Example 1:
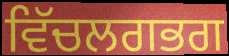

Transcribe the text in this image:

ਵਿੱਚਲਗਭਗ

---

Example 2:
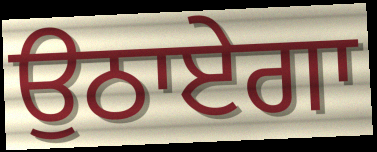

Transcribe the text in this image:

ਉਠਾਏਗਾ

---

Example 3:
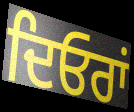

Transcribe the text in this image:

ਦਿਓਰਾਂ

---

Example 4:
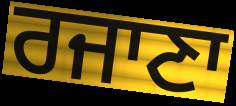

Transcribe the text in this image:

ਰਜਾਣਾ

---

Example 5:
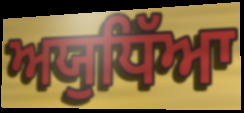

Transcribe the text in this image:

ਅਯੁਧਿੱਆ